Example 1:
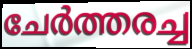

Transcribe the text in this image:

ചേർത്തരച്ച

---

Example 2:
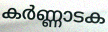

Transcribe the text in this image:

കർണ്ണാടക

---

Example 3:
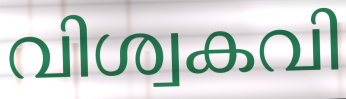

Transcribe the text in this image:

വിശ്വകവി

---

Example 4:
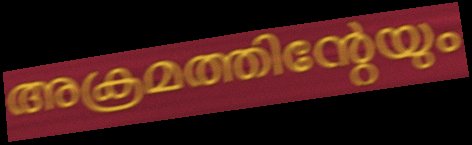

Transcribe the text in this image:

അക്രമത്തിന്റേയും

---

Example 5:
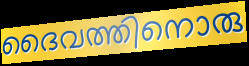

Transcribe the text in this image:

ദൈവത്തിനൊരു